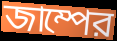
জাম্পের